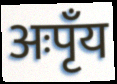
अःपृँय